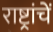
राष्ट्रांचें